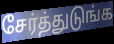
சேர்த்துடுங்க